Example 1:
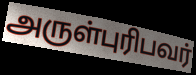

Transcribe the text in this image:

அருள்புரிபவர்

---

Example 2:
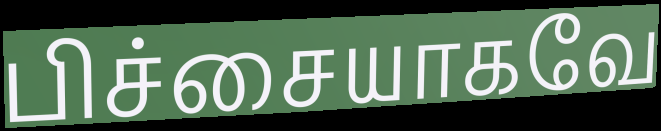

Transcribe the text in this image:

பிச்சையாகவே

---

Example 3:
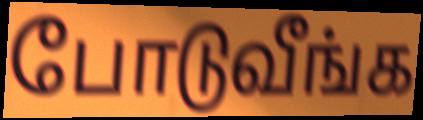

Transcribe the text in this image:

போடுவீங்க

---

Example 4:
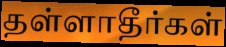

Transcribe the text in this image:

தள்ளாதீர்கள்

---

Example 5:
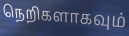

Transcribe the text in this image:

நெறிகளாகவும்